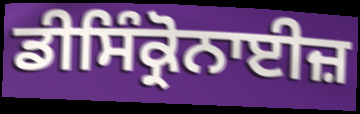
ਡੀਸਿੰਕ੍ਰੋਨਾਈਜ਼